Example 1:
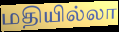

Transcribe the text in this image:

மதியில்லா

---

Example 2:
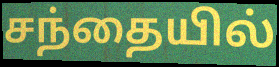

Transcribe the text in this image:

சந்தையில்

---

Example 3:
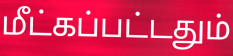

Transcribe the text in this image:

மீட்கப்பட்டதும்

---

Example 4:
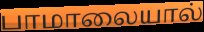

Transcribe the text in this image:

பாமாலையால்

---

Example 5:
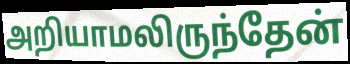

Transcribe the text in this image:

அறியாமலிருந்தேன்